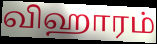
விஹாரம்